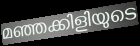
മഞ്ഞക്കിളിയുടെ